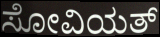
ಸೋವಿಯತ್